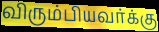
விரும்பியவர்க்கு